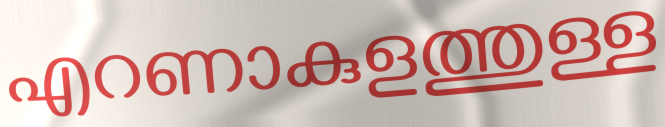
എറണാകുളത്തുള്ള